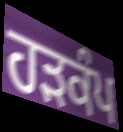
ਹੜਕੰਪ